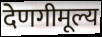
देणगीमूल्य